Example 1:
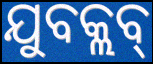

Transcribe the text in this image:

ଯୁବକ୍ଲବ୍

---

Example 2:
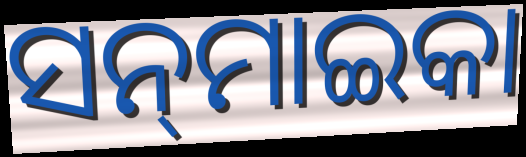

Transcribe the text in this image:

ସନ୍‌ମାଇକା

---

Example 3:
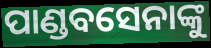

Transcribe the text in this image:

ପାଣ୍ଡବସେନାଙ୍କୁ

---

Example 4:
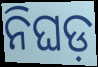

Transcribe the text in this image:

ନିଘଡ଼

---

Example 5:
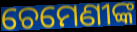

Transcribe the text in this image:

ଚେମେଣୀଙ୍କ